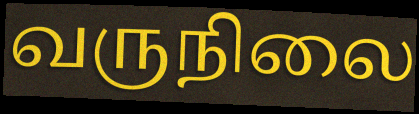
வருநிலை